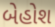
બેહોશ